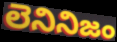
లెనినిజం